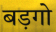
बड़गो